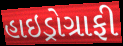
હાઇડ્રોગ્રાફી